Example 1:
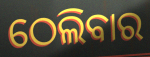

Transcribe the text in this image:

ଠେଲିବାର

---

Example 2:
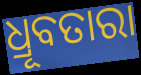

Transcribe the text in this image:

ଧ୍ରୂବତାରା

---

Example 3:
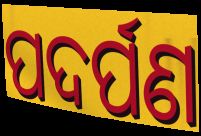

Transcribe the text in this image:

ପଦର୍ପଣ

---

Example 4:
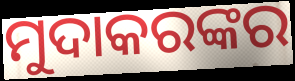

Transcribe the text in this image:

ମୁଦାକରଙ୍କର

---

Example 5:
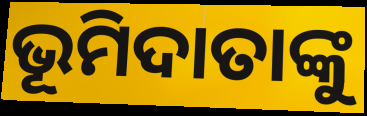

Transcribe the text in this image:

ଭୂମିଦାତାଙ୍କୁ